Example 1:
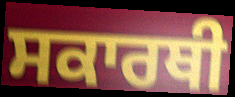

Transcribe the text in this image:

ਸਕਾਰਥੀ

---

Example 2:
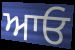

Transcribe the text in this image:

ਆਓ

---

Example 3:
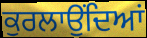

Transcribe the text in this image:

ਕੁਰਲਾਉਂਦਿਆਂ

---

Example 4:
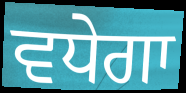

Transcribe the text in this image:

ਵਧੇਗਾ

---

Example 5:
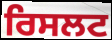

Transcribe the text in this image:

ਰਿਸਲਟ